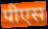
पीएस